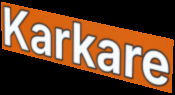
Karkare